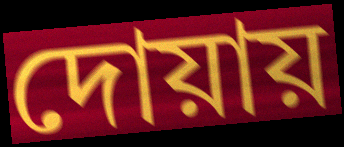
দোয়ায়